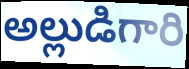
అల్లుడిగారి